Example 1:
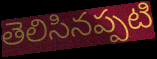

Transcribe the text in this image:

తెలిసినప్పటి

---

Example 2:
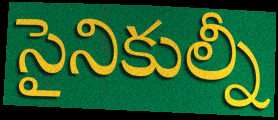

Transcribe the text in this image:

సైనికుల్నీ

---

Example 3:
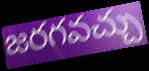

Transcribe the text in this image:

జరగవచ్చు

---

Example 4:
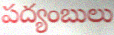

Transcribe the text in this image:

పద్యంబులు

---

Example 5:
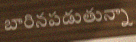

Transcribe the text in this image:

బారినపడుతున్నా